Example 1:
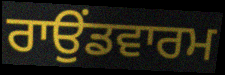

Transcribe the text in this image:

ਰਾਉਂਡਵਾਰਮ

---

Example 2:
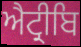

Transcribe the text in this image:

ਐਟ੍ਰੀਬਿ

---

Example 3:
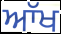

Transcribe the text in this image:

ਆੱਖ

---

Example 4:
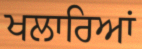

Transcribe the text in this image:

ਖਲਾਰਿਆਂ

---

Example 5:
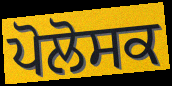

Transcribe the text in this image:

ਪੋਲੋਸਕ